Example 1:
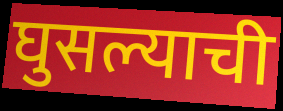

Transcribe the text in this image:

घुसल्याची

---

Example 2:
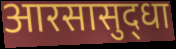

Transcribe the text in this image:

आरसासुद्धा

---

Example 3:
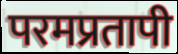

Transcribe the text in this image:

परमप्रतापी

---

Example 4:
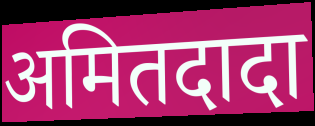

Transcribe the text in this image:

अमितदादा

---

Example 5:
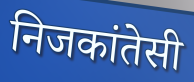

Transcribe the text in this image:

निजकांतेसी